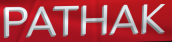
PATHAK